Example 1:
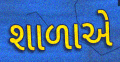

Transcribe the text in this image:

શાળાએે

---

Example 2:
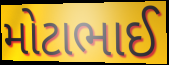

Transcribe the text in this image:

મોટાભાઈ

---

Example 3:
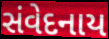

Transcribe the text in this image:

સંવેદનાય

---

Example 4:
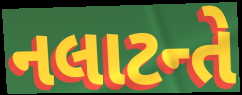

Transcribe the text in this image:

નલાટન્તે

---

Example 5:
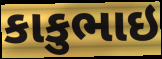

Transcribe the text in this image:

કાકુભાઇ